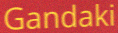
Gandaki